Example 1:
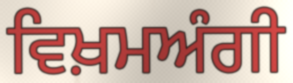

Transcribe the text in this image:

ਵਿਖ਼ਮਅੰਗੀ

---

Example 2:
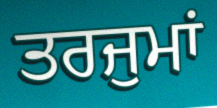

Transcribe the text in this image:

ਤਰਜੁਮਾਂ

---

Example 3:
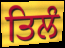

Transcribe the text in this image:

ਤਿਲੰ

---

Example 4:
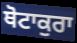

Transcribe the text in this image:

ਥੋਟਾਕੁਰਾ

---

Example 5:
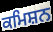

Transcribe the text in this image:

ਕਮਿਸ਼ਨ